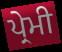
ਪ੍ਰੇਮੀ